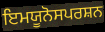
ਇਮਯੂਨੋਸਪਰਸ਼ਨ